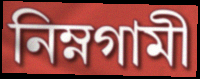
নিম্নগামী